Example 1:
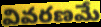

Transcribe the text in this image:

వివరణమే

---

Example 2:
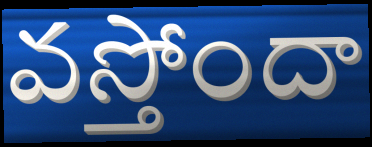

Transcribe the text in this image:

వస్తోందా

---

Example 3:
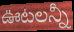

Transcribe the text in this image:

ఊటలన్నీ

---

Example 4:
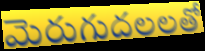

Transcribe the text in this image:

మెరుగుదలలతో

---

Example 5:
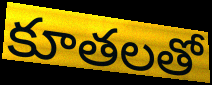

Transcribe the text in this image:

కూతలతో